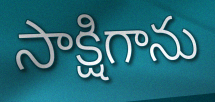
సాక్షిగాను